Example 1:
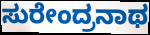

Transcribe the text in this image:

ಸುರೇಂದ್ರನಾಥ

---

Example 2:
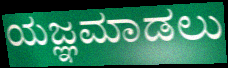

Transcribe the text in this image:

ಯಜ್ಞಮಾಡಲು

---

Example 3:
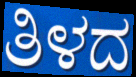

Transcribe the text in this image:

ತಿಳದ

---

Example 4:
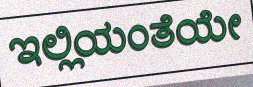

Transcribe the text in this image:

ಇಲ್ಲಿಯಂತೆಯೇ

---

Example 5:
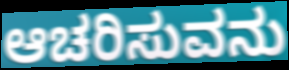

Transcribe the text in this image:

ಆಚರಿಸುವನು